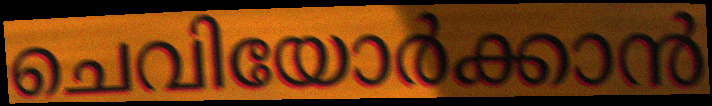
ചെവിയോർക്കാൻ